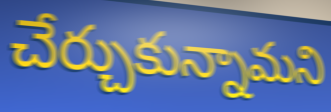
చేర్చుకున్నామని